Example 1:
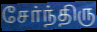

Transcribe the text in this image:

சேர்ந்திரு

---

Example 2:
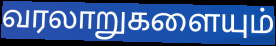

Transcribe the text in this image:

வரலாறுகளையும்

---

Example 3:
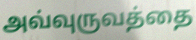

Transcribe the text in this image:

அவ்வுருவத்தை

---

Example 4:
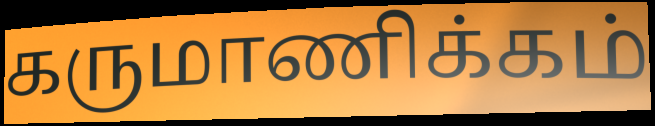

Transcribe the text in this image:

கருமாணிக்கம்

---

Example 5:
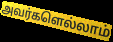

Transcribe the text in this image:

அவர்களெல்லாம்